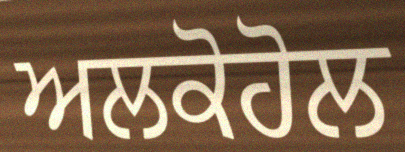
ਅਲਕੋਹੋਲ